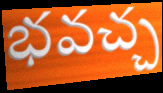
భవచ్చ